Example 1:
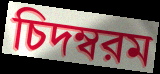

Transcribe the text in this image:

চিদম্বরম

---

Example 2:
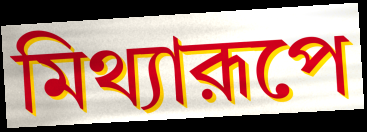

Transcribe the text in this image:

মিথ্যারূপে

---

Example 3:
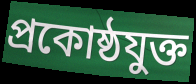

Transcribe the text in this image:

প্রকোষ্ঠযুক্ত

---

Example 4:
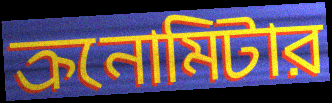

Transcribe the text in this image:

ক্রনোমিটার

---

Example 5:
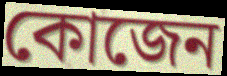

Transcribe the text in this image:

কোজেন